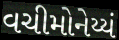
વચીમોનેય્યં